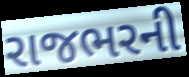
રાજભરની